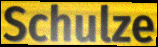
Schulze